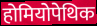
होमियोपेथिक